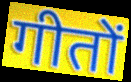
गीतों